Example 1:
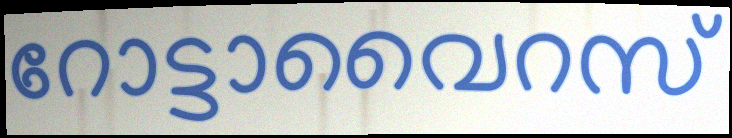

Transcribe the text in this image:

റോട്ടാവൈറസ്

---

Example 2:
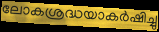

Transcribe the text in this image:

ലോകശ്രദ്ധയാകർഷിച്ചു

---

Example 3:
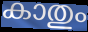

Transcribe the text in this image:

കാതും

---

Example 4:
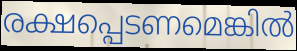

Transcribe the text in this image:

രക്ഷപ്പെടണമെങ്കിൽ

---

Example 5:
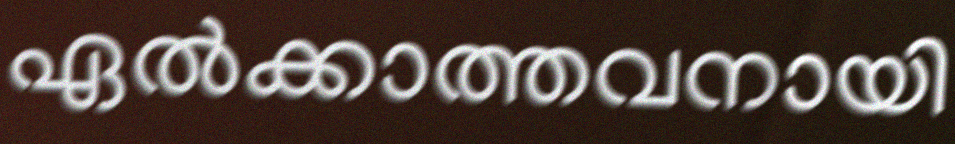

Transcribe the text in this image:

ഏൽക്കാത്തവനായി